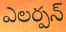
ఎలర్పన్